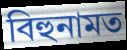
বিহুনামত